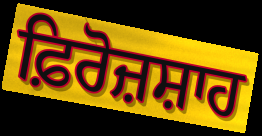
ਫ਼ਿਰੋਜ਼ਸ਼ਾਹ